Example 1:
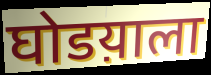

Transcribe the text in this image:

घोडय़ाला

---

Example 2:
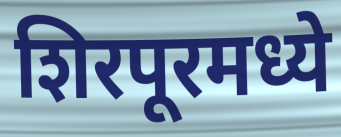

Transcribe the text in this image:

शिरपूरमध्ये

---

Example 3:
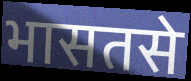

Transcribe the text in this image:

भासतसे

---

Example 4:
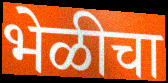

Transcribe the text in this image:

भेळीचा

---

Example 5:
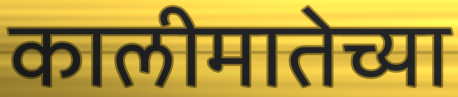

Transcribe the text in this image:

कालीमातेच्या